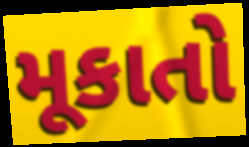
મૂકાતો